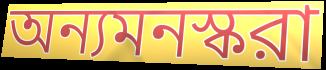
অন্যমনস্করা